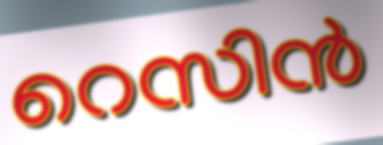
റെസിൻ